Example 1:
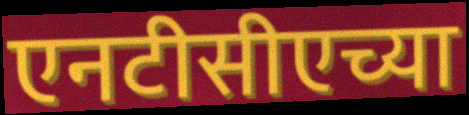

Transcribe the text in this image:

एनटीसीएच्या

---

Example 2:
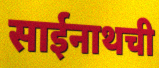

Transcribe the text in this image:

साईनाथची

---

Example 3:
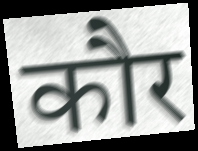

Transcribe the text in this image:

कौर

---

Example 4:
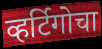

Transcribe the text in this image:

व्हर्टिगोचा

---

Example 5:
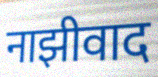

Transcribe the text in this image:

नाझीवाद